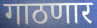
गाठणार